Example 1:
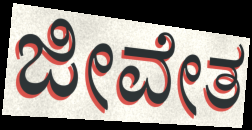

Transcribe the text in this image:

ಜೀವೇತ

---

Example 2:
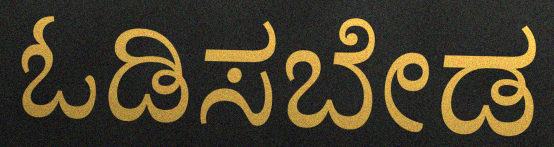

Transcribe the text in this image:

ಓಡಿಸಬೇಡ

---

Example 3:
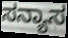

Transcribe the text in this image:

ಸನ್ಯಾಸ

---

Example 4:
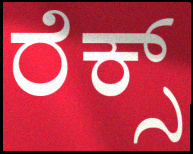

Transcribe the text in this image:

ರೆಕ್ಸ್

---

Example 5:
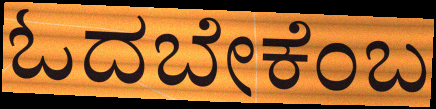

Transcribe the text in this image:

ಓದಬೇಕೆಂಬ